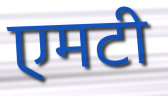
एमटी